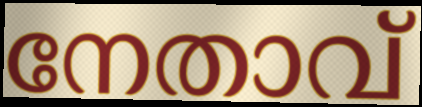
നേതാവ്